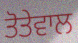
ਤੋਤੇਵਾਲ